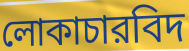
লোকাচারবিদ